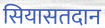
सियासतदान